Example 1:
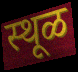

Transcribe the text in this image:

स्थूळ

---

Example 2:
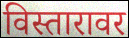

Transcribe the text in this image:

विस्तारावर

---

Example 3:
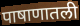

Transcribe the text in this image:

पाषाणातली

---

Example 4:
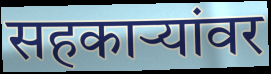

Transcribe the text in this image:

सहकार्‍यांवर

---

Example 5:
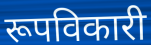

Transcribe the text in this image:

रूपविकारी